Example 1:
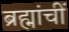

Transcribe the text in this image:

ब्रह्मांचीं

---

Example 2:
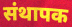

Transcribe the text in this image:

संथापक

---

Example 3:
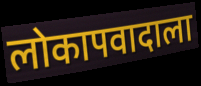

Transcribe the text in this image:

लोकापवादाला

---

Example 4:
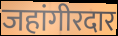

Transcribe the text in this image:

जहांगीरदार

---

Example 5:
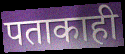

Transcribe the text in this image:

पताकाही